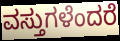
ವಸ್ತುಗಳೆಂದರೆ